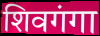
शिवगंगा